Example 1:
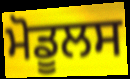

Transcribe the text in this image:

ਮੋਡੂਲਸ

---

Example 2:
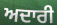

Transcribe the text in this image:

ਅਦਾਰੀ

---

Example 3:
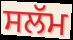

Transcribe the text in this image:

ਸਲੱਮ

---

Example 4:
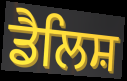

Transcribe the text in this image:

ਡੈਲਿਸ਼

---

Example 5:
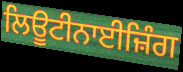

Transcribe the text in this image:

ਲਿਊਟੀਨਾਈਜ਼ਿੰਗ